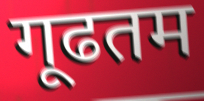
गूढतम